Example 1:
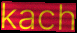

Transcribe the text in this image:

kach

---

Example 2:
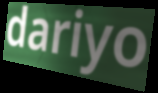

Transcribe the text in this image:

dariyo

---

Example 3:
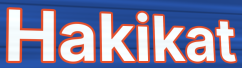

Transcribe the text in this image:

Hakikat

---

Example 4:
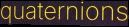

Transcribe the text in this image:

quaternions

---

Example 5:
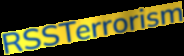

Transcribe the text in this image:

RSSTerrorism